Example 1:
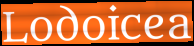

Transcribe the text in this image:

Lodoicea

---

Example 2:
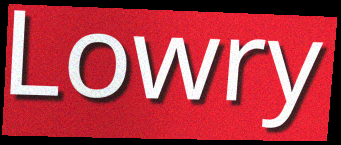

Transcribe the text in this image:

Lowry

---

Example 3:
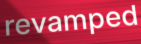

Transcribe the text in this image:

revamped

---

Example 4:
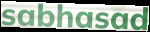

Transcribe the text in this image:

sabhasad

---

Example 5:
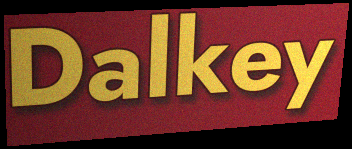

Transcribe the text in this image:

Dalkey